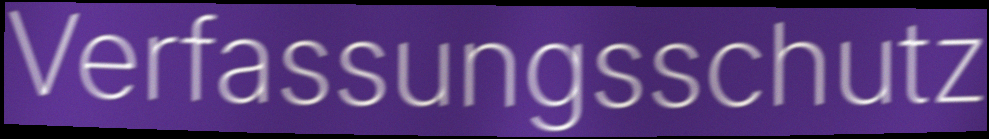
Verfassungsschutz